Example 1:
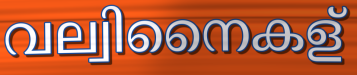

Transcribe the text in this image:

വല്വിനൈകള്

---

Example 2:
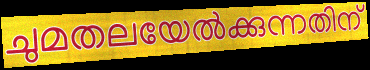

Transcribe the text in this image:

ചുമതലയേൽക്കുന്നതിന്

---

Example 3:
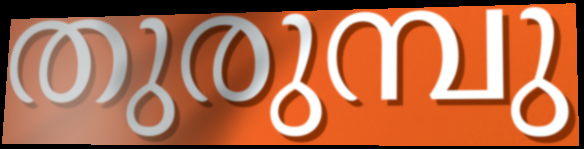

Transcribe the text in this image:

തുരുമ്പു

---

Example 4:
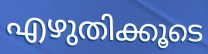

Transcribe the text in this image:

എഴുതിക്കൂടെ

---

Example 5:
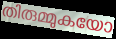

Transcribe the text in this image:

തിരുമ്മുകയോ